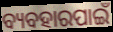
ବ୍ୟବହାରପାଇଁ